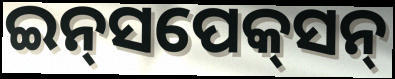
ଇନ୍‌ସପେକ୍‌ସନ୍